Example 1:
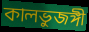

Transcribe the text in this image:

কালভুজঙ্গী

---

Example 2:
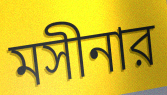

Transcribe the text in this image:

মসীনার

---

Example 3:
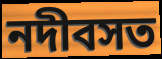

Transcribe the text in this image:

নদীবসত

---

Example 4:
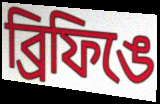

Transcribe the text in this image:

ব্রিফিঙে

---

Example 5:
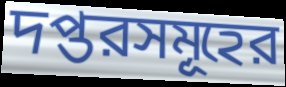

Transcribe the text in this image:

দপ্তরসমূহের